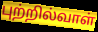
புற்றில்வாள்